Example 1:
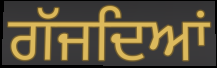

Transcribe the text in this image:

ਗੱਜਦਿਆਂ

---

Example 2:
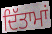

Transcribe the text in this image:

ਦਿੱਤਾਮਾਂ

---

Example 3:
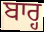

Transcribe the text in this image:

ਬਾਰ੍ਹ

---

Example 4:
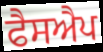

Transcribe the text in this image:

ਫੈਸਐਪ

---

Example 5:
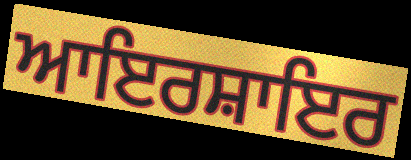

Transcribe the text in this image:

ਆਇਰਸ਼ਾਇਰ